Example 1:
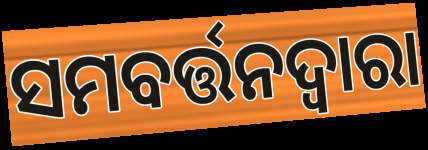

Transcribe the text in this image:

ସମବର୍ତ୍ତନଦ୍ୱାରା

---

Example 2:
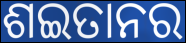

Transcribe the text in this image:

ଶଇତାନର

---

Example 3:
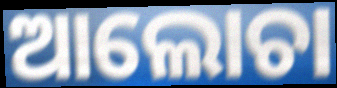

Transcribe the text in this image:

ଆଲୋଚା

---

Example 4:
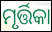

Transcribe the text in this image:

ମୃର୍ତ୍ତିକା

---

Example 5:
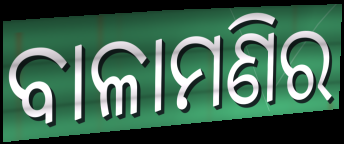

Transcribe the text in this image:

ବାଳାମଣିର